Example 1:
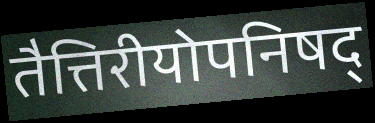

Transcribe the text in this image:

तैत्तिरीयोपनिषद्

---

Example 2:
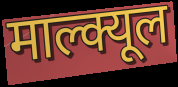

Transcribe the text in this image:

माल्क्यूल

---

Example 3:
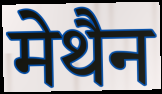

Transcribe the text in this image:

मेथैन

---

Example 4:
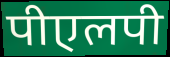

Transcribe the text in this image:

पीएलपी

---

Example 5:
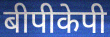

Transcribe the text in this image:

बीपीकेपी